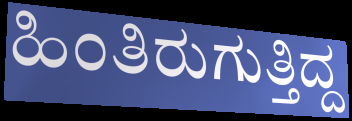
ಹಿಂತಿರುಗುತ್ತಿದ್ದ